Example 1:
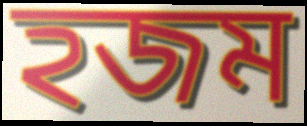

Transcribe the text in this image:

হজম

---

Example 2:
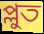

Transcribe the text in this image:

প্লুত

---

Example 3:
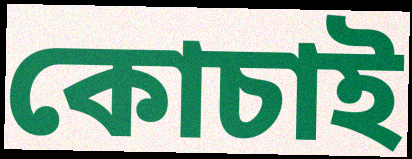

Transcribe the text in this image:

কোচাই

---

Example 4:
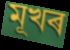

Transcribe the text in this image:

মূখৰ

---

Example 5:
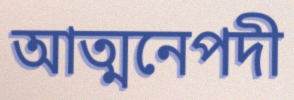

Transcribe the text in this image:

আত্মনেপদী